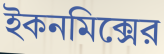
ইকনমিক্সের